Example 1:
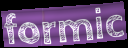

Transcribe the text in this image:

formic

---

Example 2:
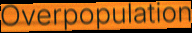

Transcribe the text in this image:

Overpopulation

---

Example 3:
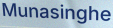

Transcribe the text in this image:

Munasinghe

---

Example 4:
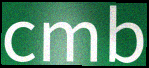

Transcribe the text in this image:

cmb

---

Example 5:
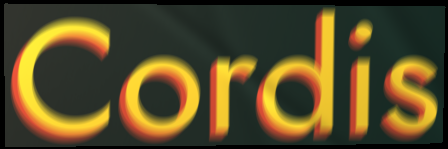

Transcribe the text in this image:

Cordis